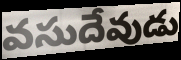
వసుదేవుడు